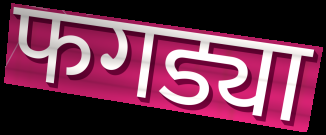
फगड्या